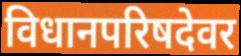
विधानपरिषदेवर